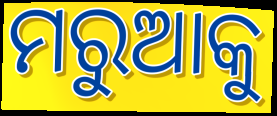
ମରୁଆକୁ